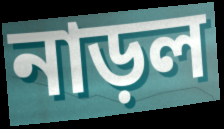
নাড়ল